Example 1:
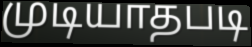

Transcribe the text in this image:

முடியாதபடி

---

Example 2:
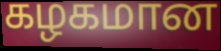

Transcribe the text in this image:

கழகமான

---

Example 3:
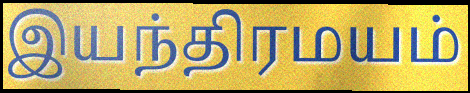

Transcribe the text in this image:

இயந்திரமயம்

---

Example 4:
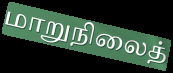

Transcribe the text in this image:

மாறுநிலைத்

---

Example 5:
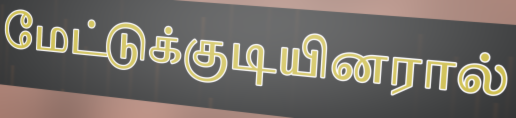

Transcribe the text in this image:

மேட்டுக்குடியினரால்